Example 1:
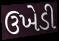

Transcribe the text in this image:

ઉખેડી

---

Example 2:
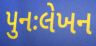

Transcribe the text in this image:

પુનઃલેખન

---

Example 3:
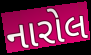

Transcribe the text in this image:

નારોલ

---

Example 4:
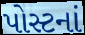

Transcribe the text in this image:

પોસ્ટનાં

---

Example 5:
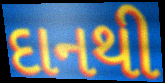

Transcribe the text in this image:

દાનથી